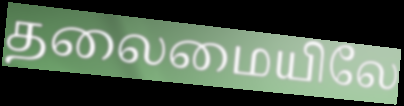
தலைமையிலே